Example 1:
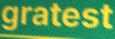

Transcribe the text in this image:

gratest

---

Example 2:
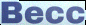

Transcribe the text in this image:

Becc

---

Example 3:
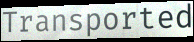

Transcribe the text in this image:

Transported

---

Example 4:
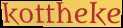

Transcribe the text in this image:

kottheke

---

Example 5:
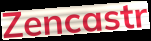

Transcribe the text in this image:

Zencastr